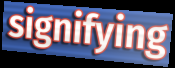
signifying